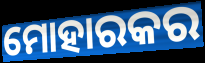
ମୋହାରକର